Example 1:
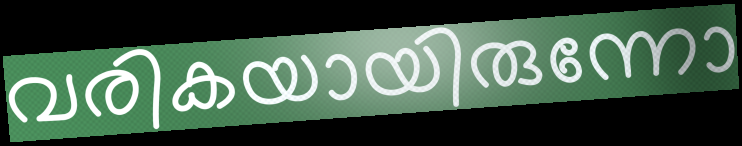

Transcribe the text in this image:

വരികയായിരുന്നോ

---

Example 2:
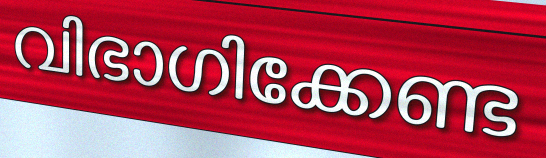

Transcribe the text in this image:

വിഭാഗിക്കേണ്ട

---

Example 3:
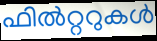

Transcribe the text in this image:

ഫിൽറ്ററുകൾ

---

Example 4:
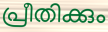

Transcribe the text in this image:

പ്രീതിക്കും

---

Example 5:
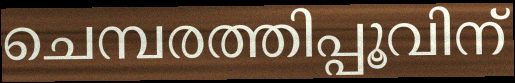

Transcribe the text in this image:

ചെമ്പരത്തിപ്പൂവിന്